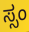
ಸ್ಸಂ